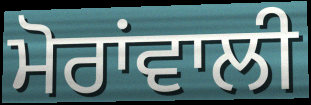
ਮੋਰਾਂਵਾਲੀ